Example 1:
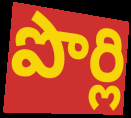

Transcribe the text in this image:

పొర్లి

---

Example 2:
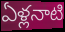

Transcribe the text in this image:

ఏళ్లనాటి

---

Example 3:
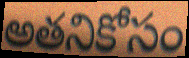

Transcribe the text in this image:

అతనికోసం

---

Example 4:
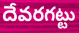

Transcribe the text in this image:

దేవరగట్టు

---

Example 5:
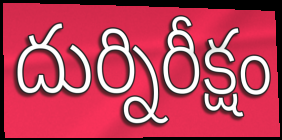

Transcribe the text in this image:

దుర్నిరీక్షం